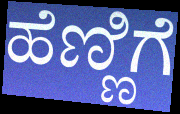
ಹೆಣ್ಣಿಗೆ